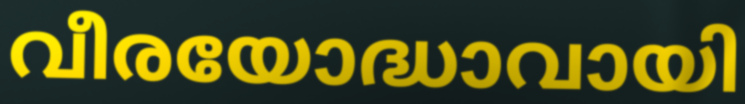
വീരയോദ്ധാവായി